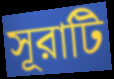
সূরাটি